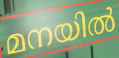
മനയിൽ